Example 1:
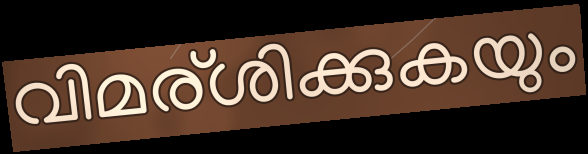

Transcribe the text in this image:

വിമര്ശിക്കുകയും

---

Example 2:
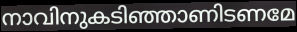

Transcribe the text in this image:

നാവിനുകടിഞ്ഞാണിടണമേ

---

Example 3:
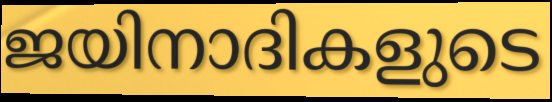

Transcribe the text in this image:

ജയിനാദികളുടെ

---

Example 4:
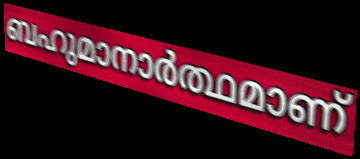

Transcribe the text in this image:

ബഹുമാനാർത്ഥമാണ്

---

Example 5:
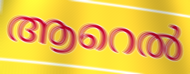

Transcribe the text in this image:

ആറെൽ